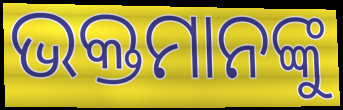
ଭକ୍ତମାନଙ୍କୁ